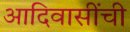
आदिवासींची